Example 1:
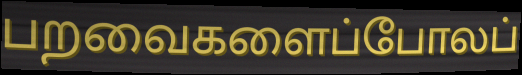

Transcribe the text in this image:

பறவைகளைப்போலப்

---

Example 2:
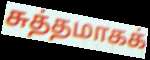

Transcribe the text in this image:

சுத்தமாகக்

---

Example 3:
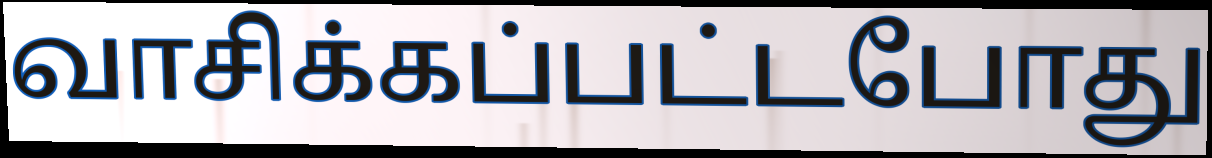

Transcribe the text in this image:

வாசிக்கப்பட்டபோது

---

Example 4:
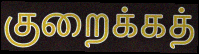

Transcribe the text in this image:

குறைக்கத்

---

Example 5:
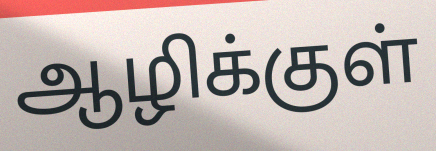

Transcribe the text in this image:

ஆழிக்குள்